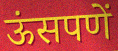
ऊंसपणें